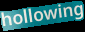
hollowing